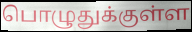
பொழுதுக்குள்ள